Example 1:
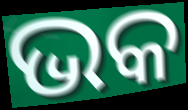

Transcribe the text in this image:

ଭକ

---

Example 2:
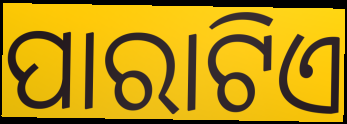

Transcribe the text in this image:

ପାରାଟିଏ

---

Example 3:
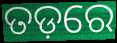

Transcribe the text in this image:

ତଡ଼ରେ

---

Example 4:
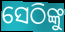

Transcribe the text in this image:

ସେଠିଙ୍କୁ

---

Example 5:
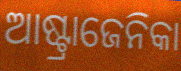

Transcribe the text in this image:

ଆଷ୍ଟ୍ରାଜେନିକା